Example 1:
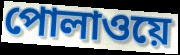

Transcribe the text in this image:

পোলাওয়ে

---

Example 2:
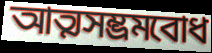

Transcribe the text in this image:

আত্মসম্ভ্রমবোধ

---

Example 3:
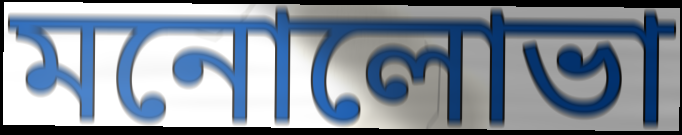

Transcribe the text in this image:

মনোলোভা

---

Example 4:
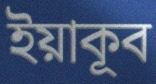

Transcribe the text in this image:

ইয়াকূব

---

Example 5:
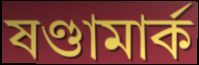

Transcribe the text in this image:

ষণ্ডামার্ক